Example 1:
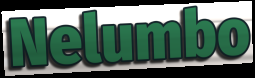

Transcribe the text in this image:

Nelumbo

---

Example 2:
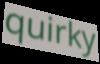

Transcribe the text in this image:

quirky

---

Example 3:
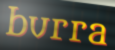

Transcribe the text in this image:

burra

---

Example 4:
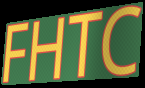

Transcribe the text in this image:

FHTC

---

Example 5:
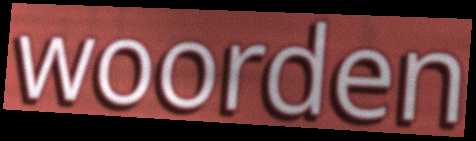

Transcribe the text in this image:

woorden